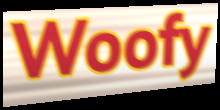
Woofy